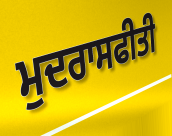
ਮੁਦਰਾਸਫੀਤੀ